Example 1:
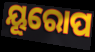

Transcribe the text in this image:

ୟୂରୋପ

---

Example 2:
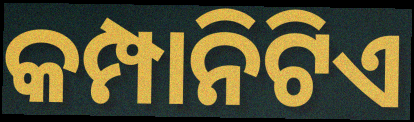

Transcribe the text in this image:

କମ୍ପାନିଟିଏ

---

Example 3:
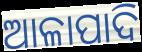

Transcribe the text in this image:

ଆଳାପାଦି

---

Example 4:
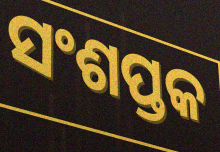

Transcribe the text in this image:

ସଂଶପ୍ତକ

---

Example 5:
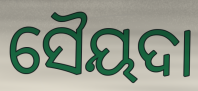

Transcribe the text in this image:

ସୈୟଦା